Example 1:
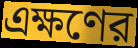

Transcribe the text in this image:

এক্ষণের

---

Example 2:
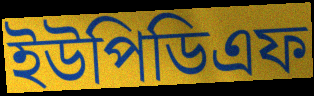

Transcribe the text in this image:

ইউপিডিএফ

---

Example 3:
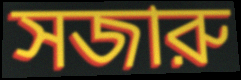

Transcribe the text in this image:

সজারু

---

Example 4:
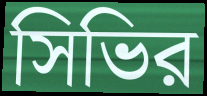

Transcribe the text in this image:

সিভির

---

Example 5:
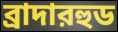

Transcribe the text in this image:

ব্রাদারহুড